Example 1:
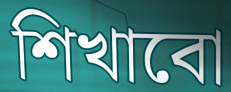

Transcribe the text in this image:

শিখাবো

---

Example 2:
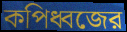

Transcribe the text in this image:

কপিধ্বজের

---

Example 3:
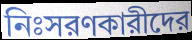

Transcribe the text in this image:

নিঃসরণকারীদের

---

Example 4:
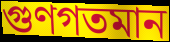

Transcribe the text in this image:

গুণগতমান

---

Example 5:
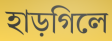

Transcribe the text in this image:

হাড়গিলে